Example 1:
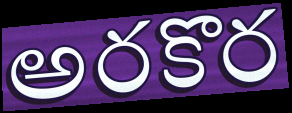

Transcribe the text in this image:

అరకొర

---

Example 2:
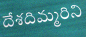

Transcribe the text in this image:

దేశదిమ్మరిని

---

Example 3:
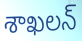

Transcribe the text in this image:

శాఖలన్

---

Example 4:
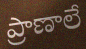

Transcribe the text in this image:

ప్రాణాలే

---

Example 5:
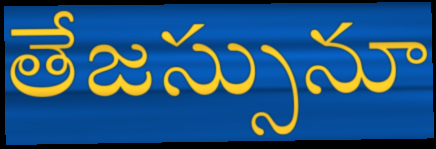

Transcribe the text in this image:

తేజస్సునూ